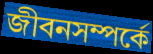
জীবনসম্পর্কে